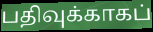
பதிவுக்காகப்